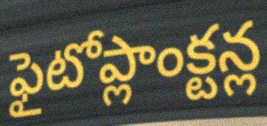
ఫైటోప్లాంక్టన్ల